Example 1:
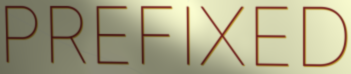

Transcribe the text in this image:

PREFIXED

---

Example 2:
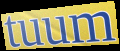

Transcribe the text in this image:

tuum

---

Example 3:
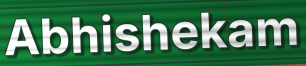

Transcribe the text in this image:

Abhishekam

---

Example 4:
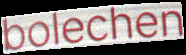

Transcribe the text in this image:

bolechen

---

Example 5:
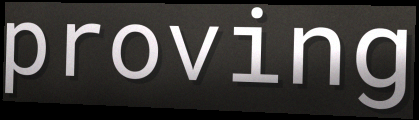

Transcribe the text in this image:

proving